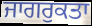
ਜਾਗਰੁਕਤਾ